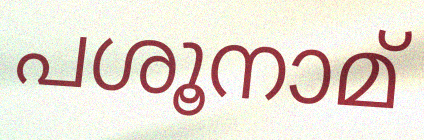
പശൂനാമ്